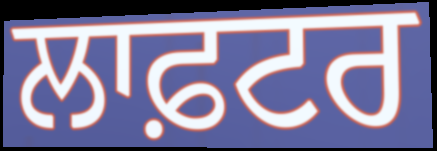
ਲਾਫ਼ਟਰ